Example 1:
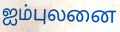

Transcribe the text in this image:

ஐம்புலனை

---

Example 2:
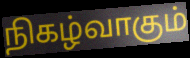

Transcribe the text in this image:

நிகழ்வாகும்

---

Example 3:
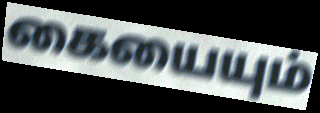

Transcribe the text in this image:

கையையும்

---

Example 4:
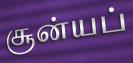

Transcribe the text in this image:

சூன்யப்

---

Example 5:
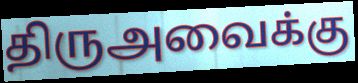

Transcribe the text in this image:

திருஅவைக்கு